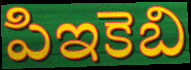
పిఇకెబి